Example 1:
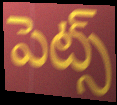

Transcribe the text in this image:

పెట్స్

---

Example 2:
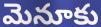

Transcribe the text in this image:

మెనూకు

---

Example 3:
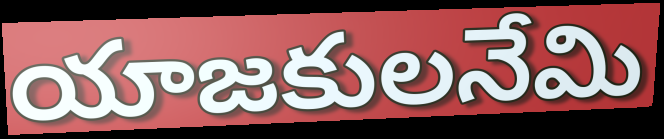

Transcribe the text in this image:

యాజకులనేమి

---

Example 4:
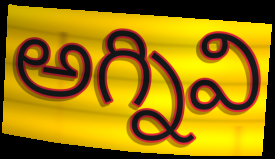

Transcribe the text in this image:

అగ్నివి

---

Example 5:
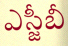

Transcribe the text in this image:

ఎస్జీబీ